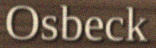
Osbeck